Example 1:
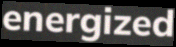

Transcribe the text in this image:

energized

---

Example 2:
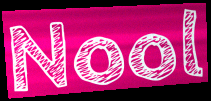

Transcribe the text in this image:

Nool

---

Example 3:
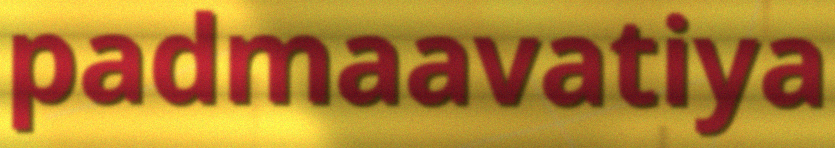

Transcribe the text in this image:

padmaavatiya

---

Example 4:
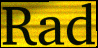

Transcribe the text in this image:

Rad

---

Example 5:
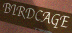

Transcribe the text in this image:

BIRDCAGE